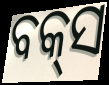
ବକ୍‌ସ